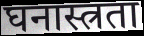
घनास्त्रता